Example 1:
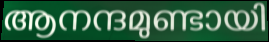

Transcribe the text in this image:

ആനന്ദമുണ്ടായി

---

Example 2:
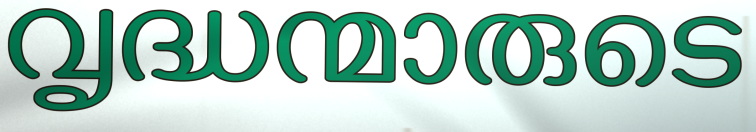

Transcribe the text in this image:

വൃദ്ധന്മാരുടെ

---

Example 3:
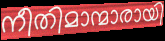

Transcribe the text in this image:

നീതിമാന്മാരായി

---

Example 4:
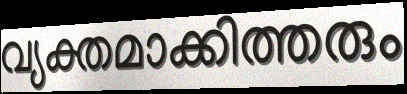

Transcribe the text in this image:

വ്യക്തമാക്കിത്തരും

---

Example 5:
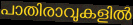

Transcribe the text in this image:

പാതിരാവുകളിൽ